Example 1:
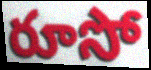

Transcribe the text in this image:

రూసో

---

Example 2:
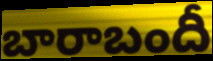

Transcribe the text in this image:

బారాబందీ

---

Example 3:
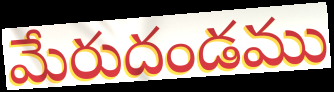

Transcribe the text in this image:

మేరుదండము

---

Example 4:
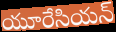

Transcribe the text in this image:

యూరేసియన్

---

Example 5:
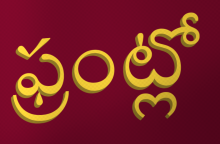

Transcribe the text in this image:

ఫ్రంట్లో